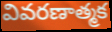
వివరణాత్మక